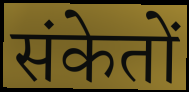
संकेतों